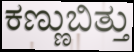
ಕಣ್ಣುಬಿತ್ತು